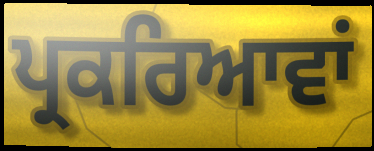
ਪ੍ਰਕਰਿਆਵਾਂ